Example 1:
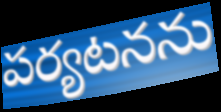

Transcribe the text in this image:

పర్యటనను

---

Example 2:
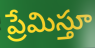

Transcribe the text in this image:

ప్రేమిస్తూ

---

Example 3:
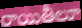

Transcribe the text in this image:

రాయితీలూ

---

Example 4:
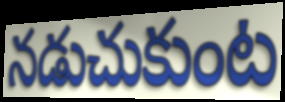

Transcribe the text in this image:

నడుచుకుంట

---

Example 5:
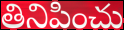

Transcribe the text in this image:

తినిపించు